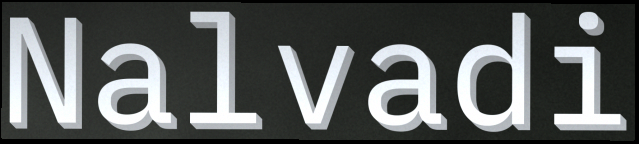
Nalvadi